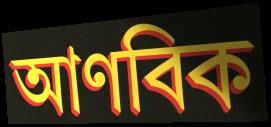
আণবিক